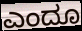
ಎಂದೂ